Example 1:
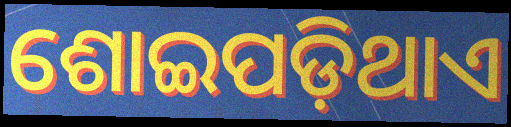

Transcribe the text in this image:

ଶୋଇପଡ଼ିଥାଏ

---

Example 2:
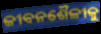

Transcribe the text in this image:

ଜୀବନଶୈଳୀକୁ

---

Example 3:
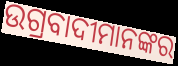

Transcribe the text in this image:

ଉଗ୍ରବାଦୀମାନଙ୍କର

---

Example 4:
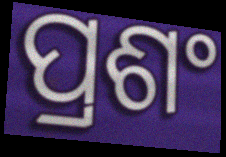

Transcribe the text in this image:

ପ୍ରଶଂ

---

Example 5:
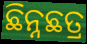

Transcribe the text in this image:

ଛିନ୍ନଛତ୍ର